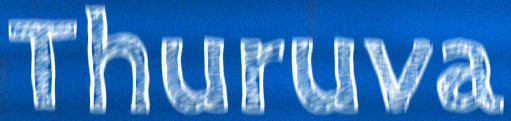
Thuruva